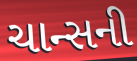
ચાન્સની